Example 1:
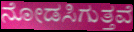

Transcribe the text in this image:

ನೋಡಸಿಗುತ್ತವೆ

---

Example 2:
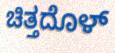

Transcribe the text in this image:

ಚಿತ್ತದೊಳ್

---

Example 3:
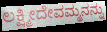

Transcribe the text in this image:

ಲಕ್ಷ್ಮೀದೇವಮ್ಮನನ್ನು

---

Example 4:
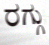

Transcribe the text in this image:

ರಗ್ಗು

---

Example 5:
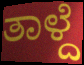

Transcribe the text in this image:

ತಾಳ್ದೆ